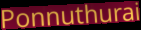
Ponnuthurai